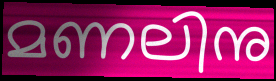
മണലിനു